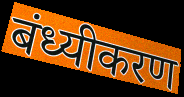
बंध्यीकरण